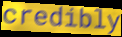
credibly